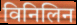
विनिलिन